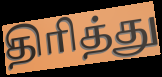
திரித்து